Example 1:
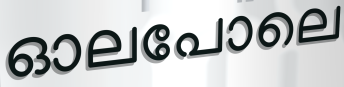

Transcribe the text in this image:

ഓലപോലെ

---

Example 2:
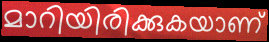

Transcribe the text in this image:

മാറിയിരിക്കുകയാണ്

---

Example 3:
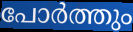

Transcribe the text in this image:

പോർത്തും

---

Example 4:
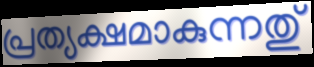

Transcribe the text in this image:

പ്രത്യക്ഷമാകുന്നതു്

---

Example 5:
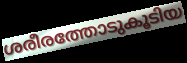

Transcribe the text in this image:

ശരീരത്തോടുകൂടിയ